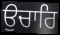
ਉਚਾਰਿ